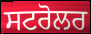
ਸਟਰੋਲਰ